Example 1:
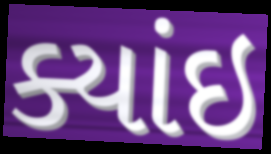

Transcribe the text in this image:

ક્યાંઇ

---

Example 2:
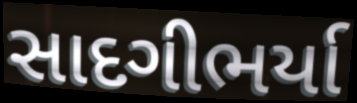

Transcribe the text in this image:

સાદગીભર્યા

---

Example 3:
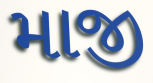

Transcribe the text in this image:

માજી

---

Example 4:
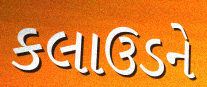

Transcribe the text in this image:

કલાઉડને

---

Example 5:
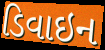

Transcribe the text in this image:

ડિવાઇન